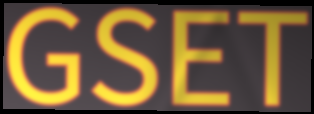
GSET